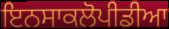
ਇਨਸਾਕਲੋਪੀਡੀਆ